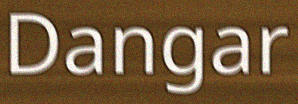
Dangar